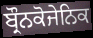
ਬ੍ਰੌਨਕੋਜੇਨਿਕ